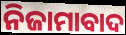
ନିଜାମାବାଦ